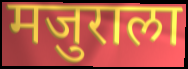
मजुराला